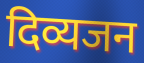
दिव्यजन